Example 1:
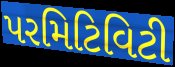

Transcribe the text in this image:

પરમિટિવિટી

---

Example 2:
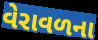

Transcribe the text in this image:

વેરાવળના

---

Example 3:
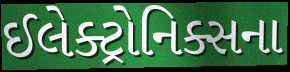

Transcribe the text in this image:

ઈલેક્ટ્રોનિક્સના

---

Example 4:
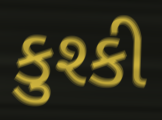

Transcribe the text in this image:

કુશ્કી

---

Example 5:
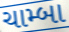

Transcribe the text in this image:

ચામ્બા